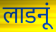
लाडनूं